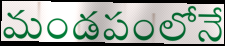
మండపంలోనే